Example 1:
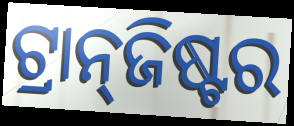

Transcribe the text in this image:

ଟ୍ରାନ୍‍ଜିଷ୍ଟର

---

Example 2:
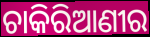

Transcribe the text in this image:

ଚାକିରିଆଣୀର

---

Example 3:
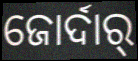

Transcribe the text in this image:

ଜୋର୍ଦାର୍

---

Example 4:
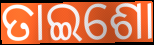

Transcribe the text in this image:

ତାଇଶୋ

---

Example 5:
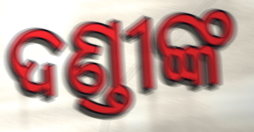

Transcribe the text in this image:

ଦଣ୍ଡୀଙ୍କ